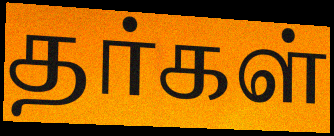
தர்கள்